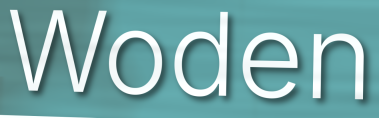
Woden